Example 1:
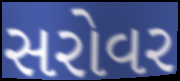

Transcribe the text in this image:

સરોવર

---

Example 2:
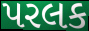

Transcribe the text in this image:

પરલક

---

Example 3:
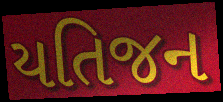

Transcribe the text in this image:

યતિજન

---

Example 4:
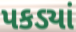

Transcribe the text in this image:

પકડ્યાં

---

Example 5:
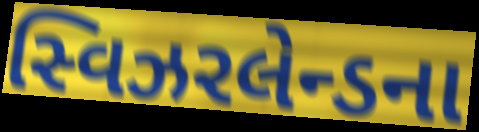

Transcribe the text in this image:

સ્વિઝરલેન્ડના